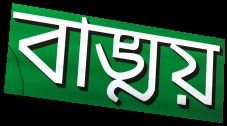
বাঙ্ময়